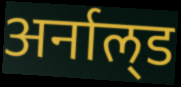
अर्नाल्ड